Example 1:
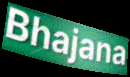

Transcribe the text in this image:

Bhajana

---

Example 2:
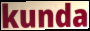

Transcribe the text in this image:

kunda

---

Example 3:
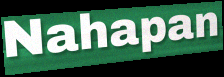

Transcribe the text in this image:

Nahapan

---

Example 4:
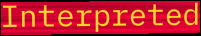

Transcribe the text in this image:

Interpreted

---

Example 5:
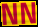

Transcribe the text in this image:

NN